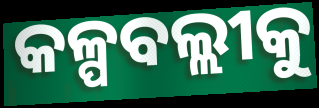
କଳ୍ପବଲ୍ଲୀକୁ